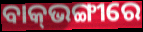
ବାକ୍‍ଭଙ୍ଗୀରେ